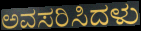
ಅವಸರಿಸಿದಳು